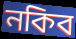
নকিব